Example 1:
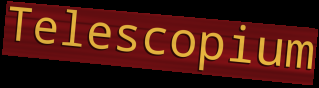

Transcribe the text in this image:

Telescopium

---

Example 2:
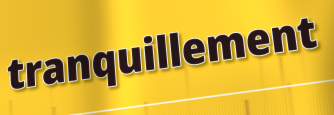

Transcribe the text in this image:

tranquillement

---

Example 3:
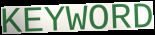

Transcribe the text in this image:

KEYWORD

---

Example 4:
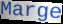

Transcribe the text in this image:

Marge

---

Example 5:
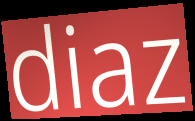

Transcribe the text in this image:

diaz